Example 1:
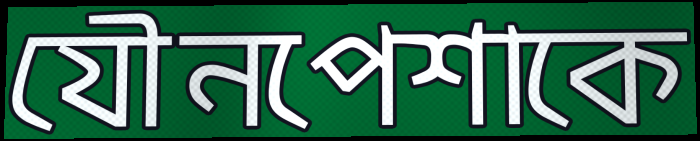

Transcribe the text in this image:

যৌনপেশাকে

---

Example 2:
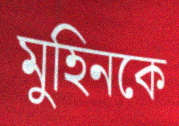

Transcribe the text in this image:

মুহিনকে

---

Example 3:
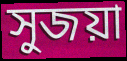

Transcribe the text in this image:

সুজয়া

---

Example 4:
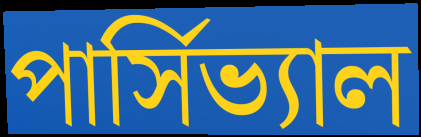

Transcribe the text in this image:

পার্সিভ্যাল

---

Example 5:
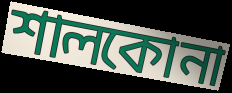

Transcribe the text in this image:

শালকোনা